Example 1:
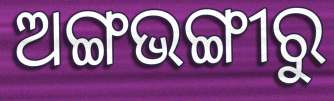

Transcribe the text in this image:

ଅଙ୍ଗଭଙ୍ଗୀରୁ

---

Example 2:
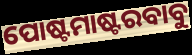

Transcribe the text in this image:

ପୋଷ୍ଟମାଷ୍ଟରବାବୁ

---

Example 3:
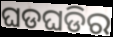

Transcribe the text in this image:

ଘଡଘଡିର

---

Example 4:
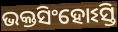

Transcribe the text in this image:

ଭକ୍ତସିଂହୋଽସ୍ତି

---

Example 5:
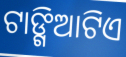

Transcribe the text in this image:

ଟାଙ୍ଗିଆଟିଏ